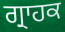
ਗ੍ਰਾਹਕ